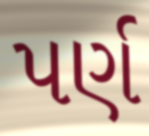
પર્ણ